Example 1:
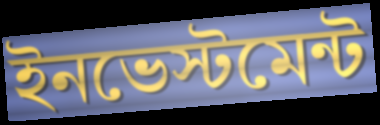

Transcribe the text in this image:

ইনভেস্টমেন্ট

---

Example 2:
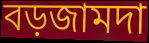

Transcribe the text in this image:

বড়জামদা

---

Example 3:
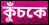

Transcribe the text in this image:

কুঁচকে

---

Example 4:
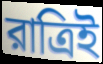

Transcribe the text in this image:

রাত্রিই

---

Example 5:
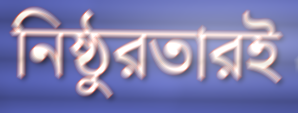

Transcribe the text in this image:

নিষ্ঠুরতারই